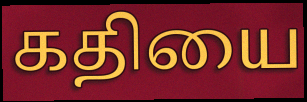
கதியை